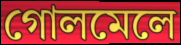
গোলমেলে